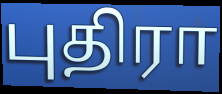
புதிரா